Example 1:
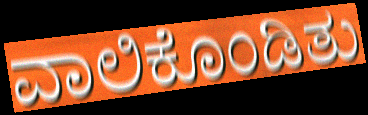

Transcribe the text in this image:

ವಾಲಿಕೊಂಡಿತು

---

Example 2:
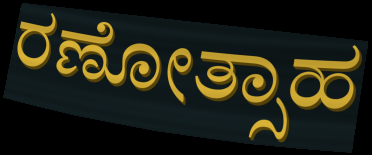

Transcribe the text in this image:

ರಣೋತ್ಸಾಹ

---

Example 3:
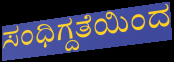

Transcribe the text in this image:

ಸಂಧಿಗ್ದತೆಯಿಂದ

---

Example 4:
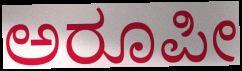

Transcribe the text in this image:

ಅರೂಪೀ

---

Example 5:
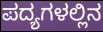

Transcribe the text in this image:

ಪದ್ಯಗಳಲ್ಲಿನ